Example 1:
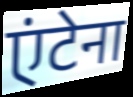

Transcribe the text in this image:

एंटेना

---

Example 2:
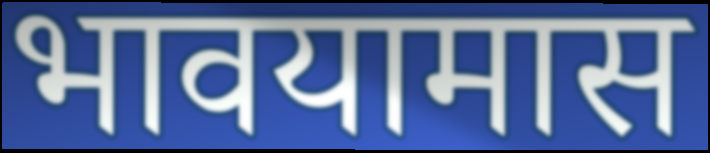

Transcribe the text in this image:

भावयामास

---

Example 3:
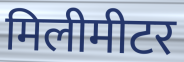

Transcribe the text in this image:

मिलीमीटर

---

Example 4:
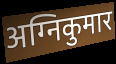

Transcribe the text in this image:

अग्निकुमार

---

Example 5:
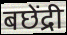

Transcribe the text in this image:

बछेंद्री